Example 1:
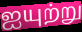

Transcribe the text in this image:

ஐயுற்று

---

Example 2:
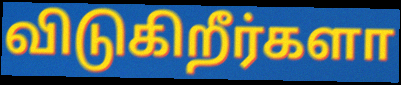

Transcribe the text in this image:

விடுகிறீர்களா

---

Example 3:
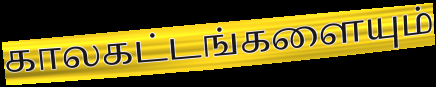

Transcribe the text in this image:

காலகட்டங்களையும்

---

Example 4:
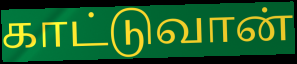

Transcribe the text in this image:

காட்டுவான்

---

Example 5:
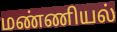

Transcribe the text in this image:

மண்ணியல்